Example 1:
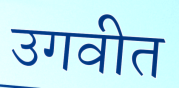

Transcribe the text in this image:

उगवीत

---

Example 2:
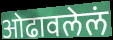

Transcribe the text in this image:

ओढावलेलं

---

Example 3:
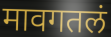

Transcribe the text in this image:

मावगतलं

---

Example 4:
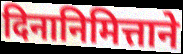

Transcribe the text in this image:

दिनानिमित्ताने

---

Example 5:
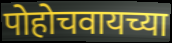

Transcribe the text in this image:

पोहोचवायच्या